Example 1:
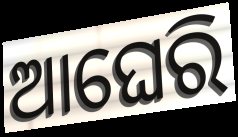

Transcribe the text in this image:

ଆଘେରି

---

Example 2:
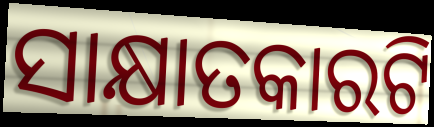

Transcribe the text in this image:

ସାକ୍ଷାତକାରଟି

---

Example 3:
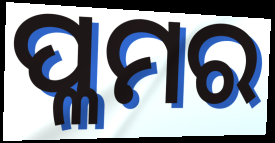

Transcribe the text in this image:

ପ୍ଳମର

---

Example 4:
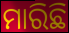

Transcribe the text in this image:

ମାରିଛି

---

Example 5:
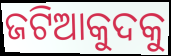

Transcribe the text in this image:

ଜଟିଆକୁଦକୁ